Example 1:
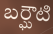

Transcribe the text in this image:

బర్ఘౌటి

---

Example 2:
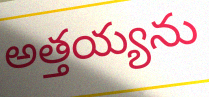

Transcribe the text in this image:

అత్తయ్యను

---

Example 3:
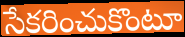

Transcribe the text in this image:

సేకరించుకొంటూ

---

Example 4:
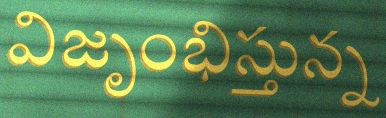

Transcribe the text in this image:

విజృంభిస్తున్న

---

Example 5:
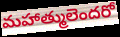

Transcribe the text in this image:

మహాత్ములెందరో